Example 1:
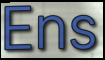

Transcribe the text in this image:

Ens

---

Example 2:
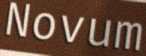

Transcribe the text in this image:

Novum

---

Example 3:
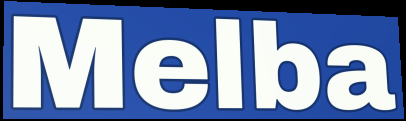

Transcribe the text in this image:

Melba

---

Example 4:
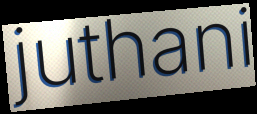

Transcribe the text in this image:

juthani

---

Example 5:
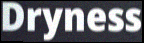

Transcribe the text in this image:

Dryness